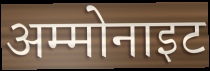
अम्मोनाइट